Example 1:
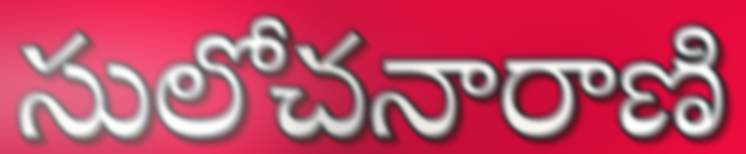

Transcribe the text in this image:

సులోచనారాణి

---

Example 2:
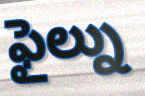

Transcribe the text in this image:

ఫైల్ను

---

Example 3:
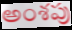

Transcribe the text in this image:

అంశపు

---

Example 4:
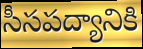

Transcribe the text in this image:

సీసపద్యానికి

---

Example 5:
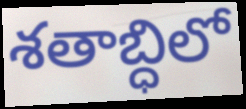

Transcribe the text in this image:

శతాబ్ధిలో